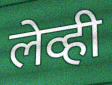
लेव्ही